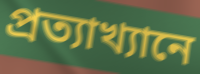
প্রত্যাখ্যানে